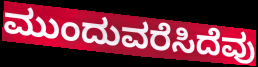
ಮುಂದುವರೆಸಿದೆವು